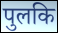
पुलकि